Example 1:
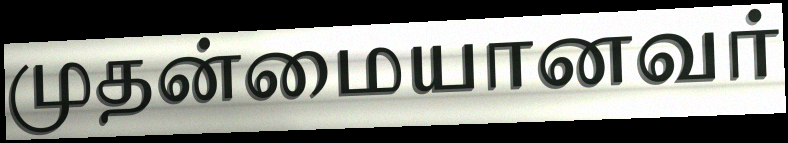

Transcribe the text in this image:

முதன்மையானவர்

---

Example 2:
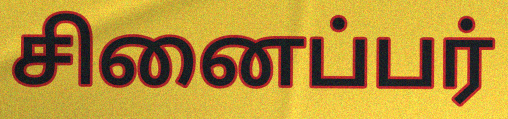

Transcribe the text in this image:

சினைப்பர்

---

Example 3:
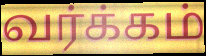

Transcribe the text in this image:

வர்க்கம்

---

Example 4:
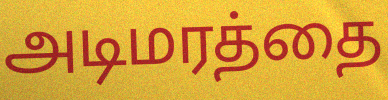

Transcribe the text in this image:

அடிமரத்தை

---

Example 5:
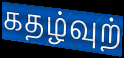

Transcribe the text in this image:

கதழ்வுற்